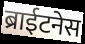
ब्राईटनेस